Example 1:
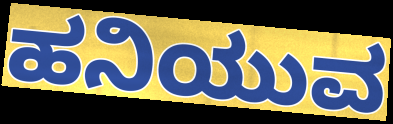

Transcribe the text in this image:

ಹನಿಯುವ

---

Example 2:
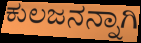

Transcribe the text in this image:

ಕುಲಜನನ್ನಾಗಿ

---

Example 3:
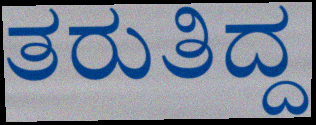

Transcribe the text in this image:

ತರುತಿದ್ದ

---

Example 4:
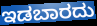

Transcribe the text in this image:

ಇಡಬಾರದು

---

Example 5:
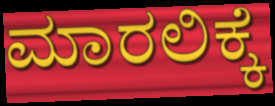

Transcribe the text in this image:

ಮಾರಲಿಕ್ಕೆ